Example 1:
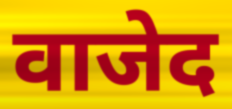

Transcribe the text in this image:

वाजेद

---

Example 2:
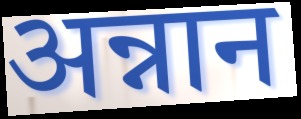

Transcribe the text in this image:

अन्नान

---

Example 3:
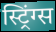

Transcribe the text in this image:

स्ट्रिंग्स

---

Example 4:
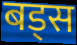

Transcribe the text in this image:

बड्स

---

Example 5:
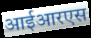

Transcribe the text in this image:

आईआरएस